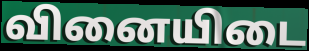
வினையிடை